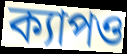
ক্যাপও